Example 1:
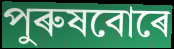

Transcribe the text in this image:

পুৰুষবোৰে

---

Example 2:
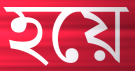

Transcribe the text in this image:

হয়ে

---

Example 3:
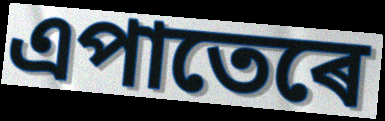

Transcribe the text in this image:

এপাতেৰে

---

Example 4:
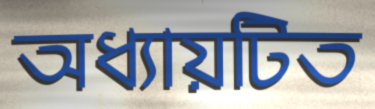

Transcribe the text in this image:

অধ্যায়টিত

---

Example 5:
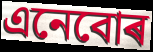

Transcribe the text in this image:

এনেবোৰ